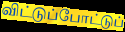
விட்டுப்போட்டுப்